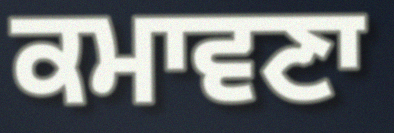
ਕਮਾਵਣਾ